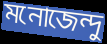
মনোজেন্দু